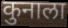
कुनाला